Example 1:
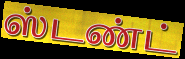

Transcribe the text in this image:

ஸ்டண்ட்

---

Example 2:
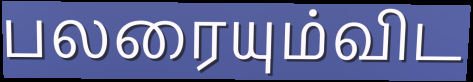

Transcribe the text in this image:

பலரையும்விட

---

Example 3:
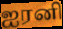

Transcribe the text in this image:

ஐரனி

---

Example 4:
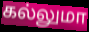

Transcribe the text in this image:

கல்லுமா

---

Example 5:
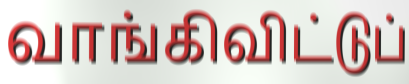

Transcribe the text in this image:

வாங்கிவிட்டுப்